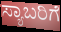
ಸ್ಯಾಬರಿಗೆ